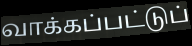
வாக்கப்பட்டுப்